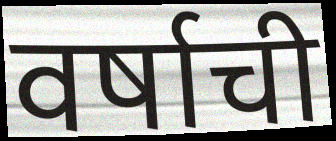
वर्षाची